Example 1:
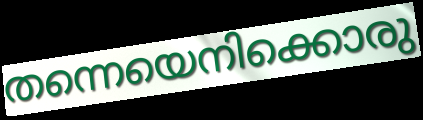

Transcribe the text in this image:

തന്നെയെനിക്കൊരു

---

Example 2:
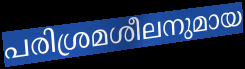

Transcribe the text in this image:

പരിശ്രമശീലനുമായ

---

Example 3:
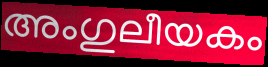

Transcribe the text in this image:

അംഗുലീയകം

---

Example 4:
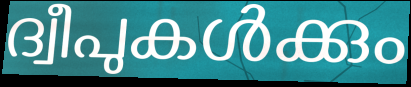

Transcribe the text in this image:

ദ്വീപുകൾക്കും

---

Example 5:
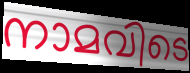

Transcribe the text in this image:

നാമവിടെ